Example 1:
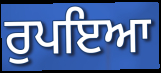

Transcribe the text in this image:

ਰੁਪਇਆ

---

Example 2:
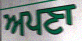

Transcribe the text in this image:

ਅਪਣਾ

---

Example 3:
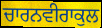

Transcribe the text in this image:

ਚਾਰਨਵੀਰਾਕੁਲ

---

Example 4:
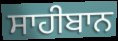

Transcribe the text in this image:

ਸਾਹੀਬਾਨ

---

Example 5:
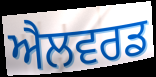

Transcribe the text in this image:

ਐਲਵਰਡ